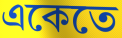
একেতে